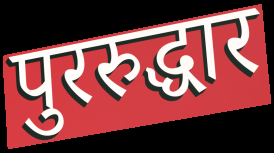
पुररुद्धार